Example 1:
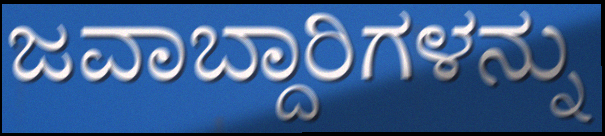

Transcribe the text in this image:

ಜವಾಬ್ದಾರಿಗಳನ್ನು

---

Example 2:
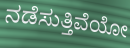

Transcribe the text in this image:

ನಡೆಸುತ್ತಿವೆಯೋ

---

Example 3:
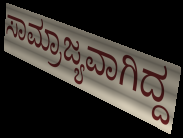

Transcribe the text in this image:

ಸಾಮ್ರಾಜ್ಯವಾಗಿದ್ದ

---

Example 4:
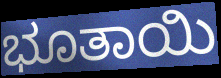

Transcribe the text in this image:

ಭೂತಾಯಿ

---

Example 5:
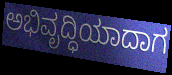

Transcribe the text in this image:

ಅಭಿವೃದ್ಧಿಯಾದಾಗ